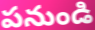
పనుండి